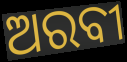
ଅରବୀ